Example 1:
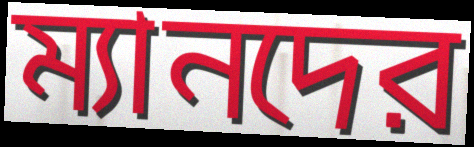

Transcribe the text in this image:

ম্যানদের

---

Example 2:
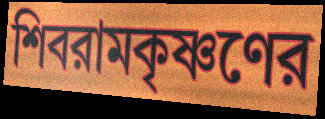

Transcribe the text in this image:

শিবরামকৃষ্ণণের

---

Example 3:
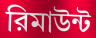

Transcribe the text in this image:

রিমাউন্ট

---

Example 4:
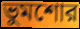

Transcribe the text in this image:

ভুমশোর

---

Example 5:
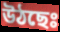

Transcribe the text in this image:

উঠছেঃ